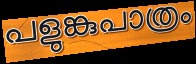
പളുങ്കുപാത്രം